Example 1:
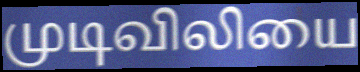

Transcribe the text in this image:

முடிவிலியை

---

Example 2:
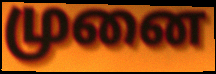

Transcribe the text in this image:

முனை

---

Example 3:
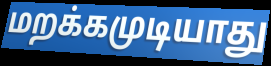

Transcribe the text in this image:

மறக்கமுடியாது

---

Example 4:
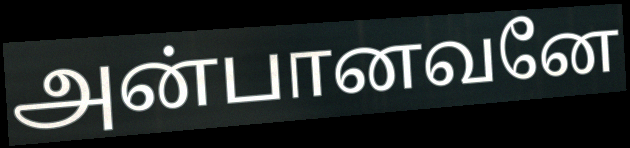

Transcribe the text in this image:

அன்பானவனே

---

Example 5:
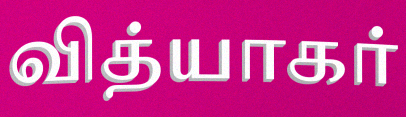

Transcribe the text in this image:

வித்யாகர்